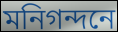
মনিগন্দনে